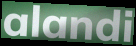
alandi